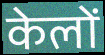
केलों